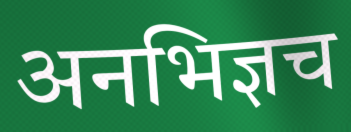
अनभिज्ञच